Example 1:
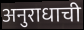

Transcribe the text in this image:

अनुराधाची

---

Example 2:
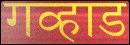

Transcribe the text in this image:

गव्हाड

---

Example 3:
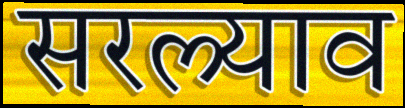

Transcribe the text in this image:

सरल्याव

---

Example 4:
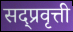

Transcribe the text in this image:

सद्प्रवृत्ती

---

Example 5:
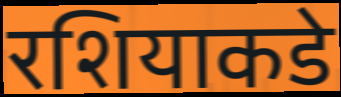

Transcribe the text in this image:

रशियाकडे